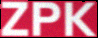
ZPK